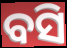
ବସି